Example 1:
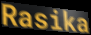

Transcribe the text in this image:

Rasika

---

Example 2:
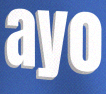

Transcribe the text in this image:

ayo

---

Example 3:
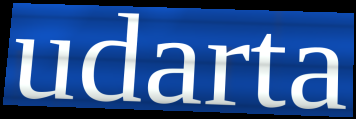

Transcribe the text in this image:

udarta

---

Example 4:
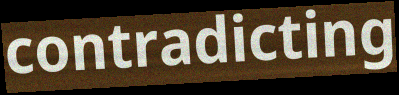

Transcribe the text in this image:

contradicting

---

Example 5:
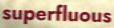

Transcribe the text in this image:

superfluous